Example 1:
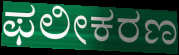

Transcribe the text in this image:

ಫಲೀಕರಣ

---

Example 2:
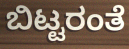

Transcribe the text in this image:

ಬಿಟ್ಟರಂತೆ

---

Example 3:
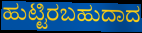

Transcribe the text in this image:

ಹುಟ್ಟಿರಬಹುದಾದ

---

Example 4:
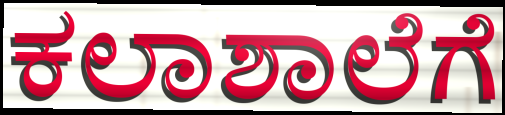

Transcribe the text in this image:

ಕಲಾಶಾಲೆಗೆ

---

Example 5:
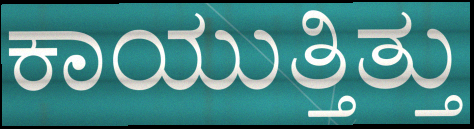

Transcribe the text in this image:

ಕಾಯುತ್ತಿತ್ತು